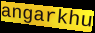
angarkhu